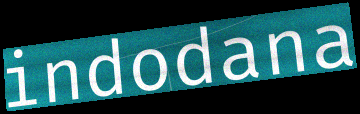
indodana